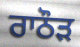
ਰਾਠੌੜ